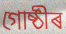
গোষ্ঠীৰ